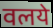
वलये